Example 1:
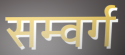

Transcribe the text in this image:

सम्वर्ग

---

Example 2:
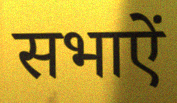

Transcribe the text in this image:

सभाऐं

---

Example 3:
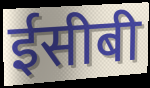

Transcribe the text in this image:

ईसीबी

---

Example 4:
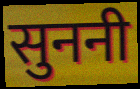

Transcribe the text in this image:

सुननी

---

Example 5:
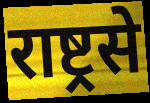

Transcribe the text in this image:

राष्ट्रसे